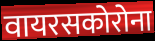
वायरसकोरोना